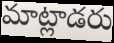
మాట్లాడరు